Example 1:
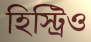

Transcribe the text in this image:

হিস্ট্রিও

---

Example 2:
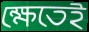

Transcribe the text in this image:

ক্ষেতেই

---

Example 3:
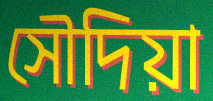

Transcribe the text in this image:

সৌদিয়া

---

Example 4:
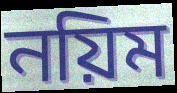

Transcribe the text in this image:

নয়িম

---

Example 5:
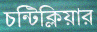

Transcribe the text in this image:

চন্টিক্লিয়ার